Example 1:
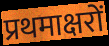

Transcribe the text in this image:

प्रथमाक्षरों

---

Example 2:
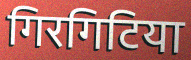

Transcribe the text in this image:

गिरगिटिया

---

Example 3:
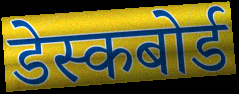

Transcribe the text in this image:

डेस्कबोर्ड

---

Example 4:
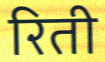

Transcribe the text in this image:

रिती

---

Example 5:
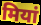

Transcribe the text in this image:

मियां